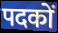
पदकों